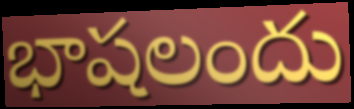
భాషలందు